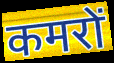
कमरों